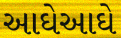
આઘેઆઘે